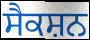
ਸੈਕਸ਼ਨ